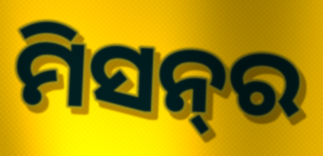
ମିସନ୍‌ର